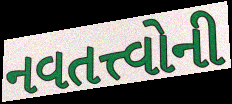
નવતત્ત્વોની